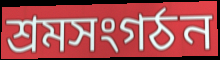
শ্রমসংগঠন